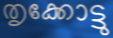
തൃക്കോട്ടു